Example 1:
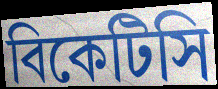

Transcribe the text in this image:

বিকেটিসি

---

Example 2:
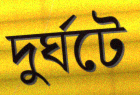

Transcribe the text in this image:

দুর্ঘটে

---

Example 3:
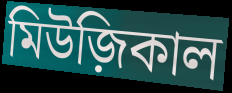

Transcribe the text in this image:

মিউজ়িকাল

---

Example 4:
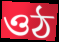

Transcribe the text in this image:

ওঠ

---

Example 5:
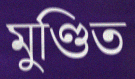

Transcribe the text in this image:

মুণ্ডিত